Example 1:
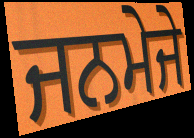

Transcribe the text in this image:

ਜਨਮੇਜੇ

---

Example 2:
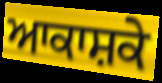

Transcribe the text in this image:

ਆਕਾਸ਼ਕੇ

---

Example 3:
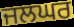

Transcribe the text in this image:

ਜਲਘਰ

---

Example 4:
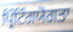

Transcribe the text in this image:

ਪ੍ਰਿੰਟਿੰਗਯੋਗਤਾ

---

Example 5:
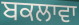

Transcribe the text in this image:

ਬਕਲਾਵਾ